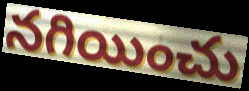
నగియించు